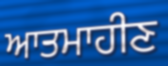
ਆਤਮਾਹੀਣ